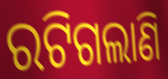
ରଟିଗଲାଣି